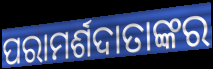
ପରାମର୍ଶଦାତାଙ୍କର